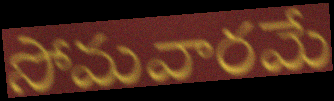
సోమవారమే